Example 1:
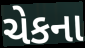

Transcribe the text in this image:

ચેકના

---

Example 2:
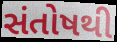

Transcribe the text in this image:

સંતોષથી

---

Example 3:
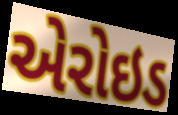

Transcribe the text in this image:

એરોઇડ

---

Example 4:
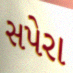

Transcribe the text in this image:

સપેરા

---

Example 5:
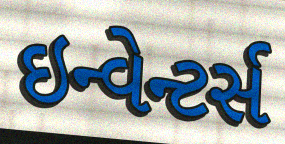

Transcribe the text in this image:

ઇન્વેન્ટર્સ